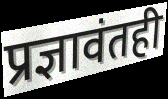
प्रज्ञावंतही